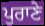
ਪੁਰਾਣੇ